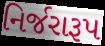
નિર્જરારૂપ